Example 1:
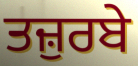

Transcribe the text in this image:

ਤਜ਼ੁਰਬੇ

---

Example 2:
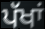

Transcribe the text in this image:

ਪੱਖਾਂ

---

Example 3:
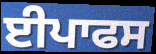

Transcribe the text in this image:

ਈਪਾਫਸ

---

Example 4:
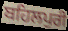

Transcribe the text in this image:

ਬਹਿਲਪੁਰੀ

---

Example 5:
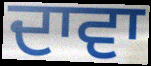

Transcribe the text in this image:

ਦਾਵਾ